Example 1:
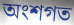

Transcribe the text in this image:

অংশগত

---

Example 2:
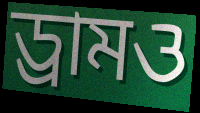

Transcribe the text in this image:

ড্রামও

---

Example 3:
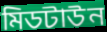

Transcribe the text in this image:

মিডটাউন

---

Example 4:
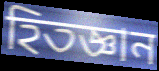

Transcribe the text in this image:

হিতজ্ঞান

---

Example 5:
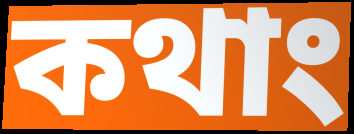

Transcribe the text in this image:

কথাং